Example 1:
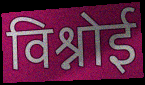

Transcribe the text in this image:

विश्नोई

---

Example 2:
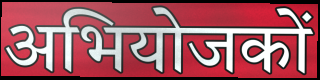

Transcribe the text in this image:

अभियोजकों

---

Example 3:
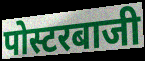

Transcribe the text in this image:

पोस्टरबाजी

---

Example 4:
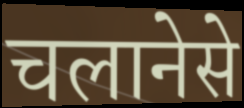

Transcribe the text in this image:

चलानेसे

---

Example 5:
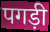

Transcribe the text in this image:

पगड़ी